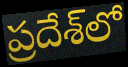
ప్రదేశ్‌లో